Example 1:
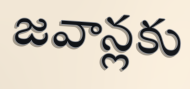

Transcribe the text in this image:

జవాన్లకు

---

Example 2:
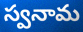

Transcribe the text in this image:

స్వనామ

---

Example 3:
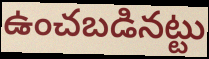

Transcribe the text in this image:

ఉంచబడినట్టు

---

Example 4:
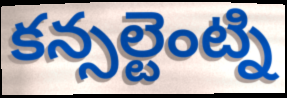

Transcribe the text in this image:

కన్సల్టెంట్ని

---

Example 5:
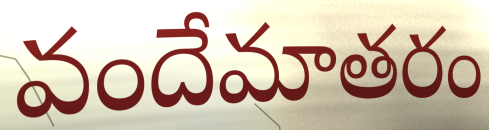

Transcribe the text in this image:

వందేమాతరం